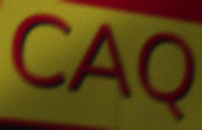
CAQ